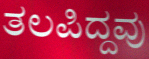
ತಲಪಿದ್ದವು